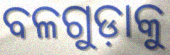
ବଳଗୁଡ଼ାକୁ